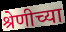
श्रेणीच्या